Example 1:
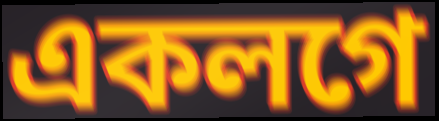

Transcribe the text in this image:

একলগে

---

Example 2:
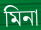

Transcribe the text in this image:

মিনা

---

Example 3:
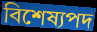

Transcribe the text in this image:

বিশেষ্যপদ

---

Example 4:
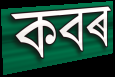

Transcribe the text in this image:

কবৰ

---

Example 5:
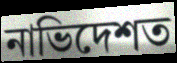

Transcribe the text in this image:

নাভিদেশত